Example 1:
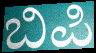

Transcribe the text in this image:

ಬಿಪಿ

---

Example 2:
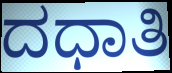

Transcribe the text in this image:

ದಧಾತಿ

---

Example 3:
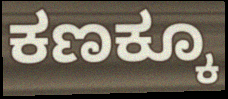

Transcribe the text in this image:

ಕಣಕ್ಕೂ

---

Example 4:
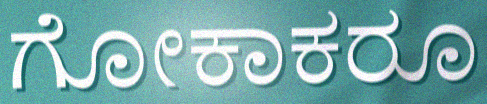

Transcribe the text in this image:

ಗೋಕಾಕರೂ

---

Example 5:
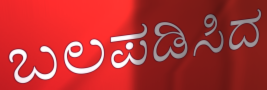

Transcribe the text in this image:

ಬಲಪಡಿಸಿದ